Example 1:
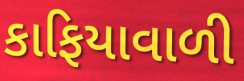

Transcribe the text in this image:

કાફિયાવાળી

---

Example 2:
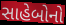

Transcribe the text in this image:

સાહેબોનો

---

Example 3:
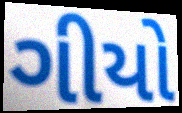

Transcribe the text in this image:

ગીયો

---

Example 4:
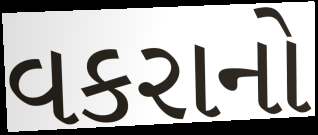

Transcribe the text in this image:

વકરાનો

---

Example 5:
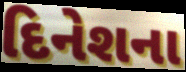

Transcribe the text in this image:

દિનેશના